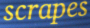
scrapes